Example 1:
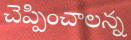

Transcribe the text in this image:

చెప్పించాలన్న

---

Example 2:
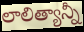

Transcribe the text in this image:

లాలిత్యాన్నీ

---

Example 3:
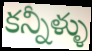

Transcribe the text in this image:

కన్నీళ్ళు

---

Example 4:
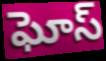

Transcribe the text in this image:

ఘోస్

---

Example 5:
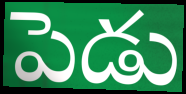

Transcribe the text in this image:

పెడు